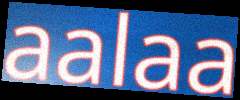
aalaa